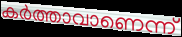
കർത്താവാണെന്ന്